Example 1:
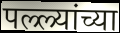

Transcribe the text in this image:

पल्ल्यांच्या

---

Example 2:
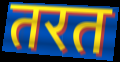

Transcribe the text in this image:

तरत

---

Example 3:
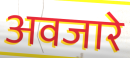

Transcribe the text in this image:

अवजारे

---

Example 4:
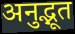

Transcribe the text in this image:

अनुद्भूत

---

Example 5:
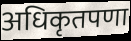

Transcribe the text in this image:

अधिकृतपणा